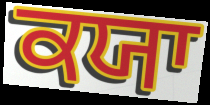
ਕਯਾ